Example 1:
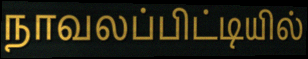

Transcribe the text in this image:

நாவலப்பிட்டியில்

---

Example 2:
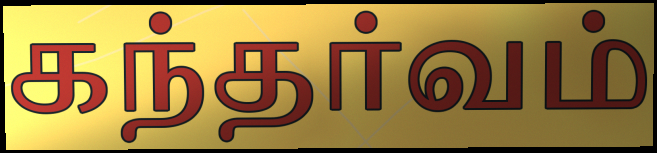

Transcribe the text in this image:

கந்தர்வம்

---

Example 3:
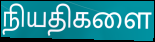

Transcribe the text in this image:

நியதிகளை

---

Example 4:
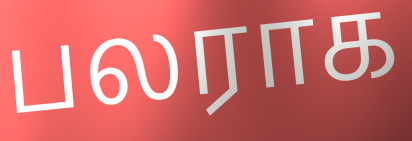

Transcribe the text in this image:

பலராக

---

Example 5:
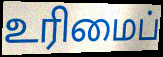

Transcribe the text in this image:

உரிமைப்